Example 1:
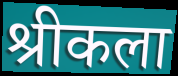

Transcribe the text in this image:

श्रीकला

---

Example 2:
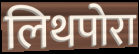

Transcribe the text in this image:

लिथपोरा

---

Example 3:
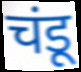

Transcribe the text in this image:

चंडू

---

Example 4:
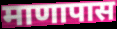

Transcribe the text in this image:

माणापास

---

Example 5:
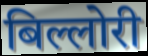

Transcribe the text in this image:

बिल्लोरी